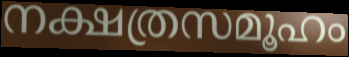
നക്ഷത്രസമൂഹം